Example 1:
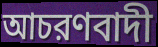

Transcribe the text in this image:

আচরণবাদী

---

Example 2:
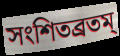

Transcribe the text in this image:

সংশিতব্রতম্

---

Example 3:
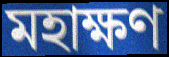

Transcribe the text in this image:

মহাক্ষণ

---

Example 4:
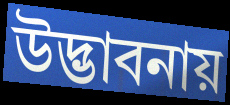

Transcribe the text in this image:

উদ্ভাবনায়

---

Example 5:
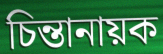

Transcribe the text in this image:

চিন্তানায়ক